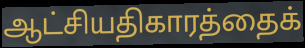
ஆட்சியதிகாரத்தைக்